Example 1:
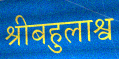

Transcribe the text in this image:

श्रीबहुलाश्व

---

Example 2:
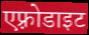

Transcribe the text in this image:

एफ़्रोडाइट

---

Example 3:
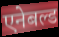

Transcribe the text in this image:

एनेबल्ड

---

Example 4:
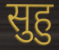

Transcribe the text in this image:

सुहु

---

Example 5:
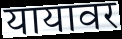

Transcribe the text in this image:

यायावर